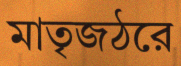
মাতৃজঠরে